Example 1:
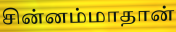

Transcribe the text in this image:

சின்னம்மாதான்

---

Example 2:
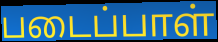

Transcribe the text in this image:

படைப்பாள்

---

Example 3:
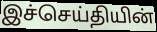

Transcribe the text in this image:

இச்செய்தியின்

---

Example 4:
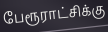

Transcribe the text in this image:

பேரூராட்சிக்கு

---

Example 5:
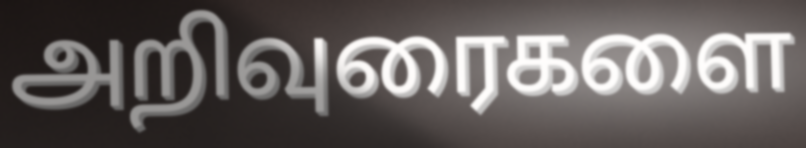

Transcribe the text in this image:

அறிவுரைகளை